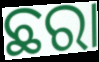
ଛରା